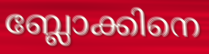
ബ്ലോക്കിനെ